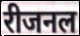
रीजनल